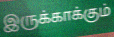
இருக்காக்கும்